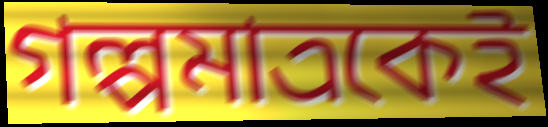
গল্পমাত্রকেই